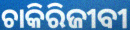
ଚାକିରିଜୀବୀ